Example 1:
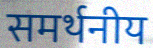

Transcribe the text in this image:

समर्थनीय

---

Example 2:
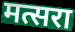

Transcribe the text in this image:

मत्सरा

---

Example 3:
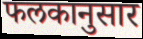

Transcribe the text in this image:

फलकानुसार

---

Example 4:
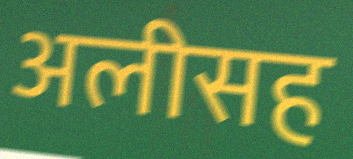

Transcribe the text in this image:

अलीसह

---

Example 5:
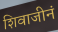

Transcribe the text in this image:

शिवाजीनं